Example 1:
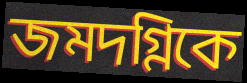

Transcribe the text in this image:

জমদগ্নিকে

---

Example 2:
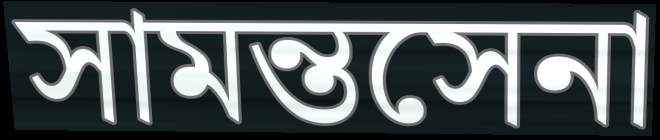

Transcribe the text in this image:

সামন্তসেনা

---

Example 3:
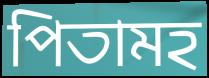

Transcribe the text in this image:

পিতামহ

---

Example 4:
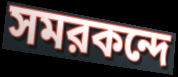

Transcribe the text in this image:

সমরকন্দে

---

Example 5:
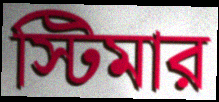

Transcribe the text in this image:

স্টিমার